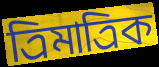
ত্রিমাত্রিক